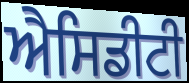
ਐਸਿਡੀਟੀ